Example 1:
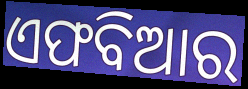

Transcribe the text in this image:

ଏଫବିଆର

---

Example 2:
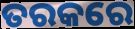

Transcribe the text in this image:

ତରକରେ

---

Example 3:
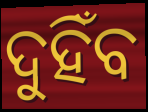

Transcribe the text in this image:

ଦୁହିଁବ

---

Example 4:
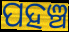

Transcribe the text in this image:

ପହଞ୍ଚ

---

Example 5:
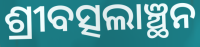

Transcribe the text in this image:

ଶ୍ରୀବତ୍ସଲାଞ୍ଛନ